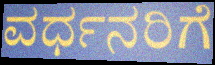
ವರ್ಧನರಿಗೆ